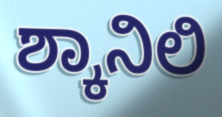
ಶ್ಕಾನಿಲಿ